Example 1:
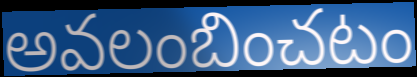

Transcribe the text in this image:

అవలంబించటం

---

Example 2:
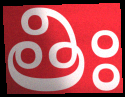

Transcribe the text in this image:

తిః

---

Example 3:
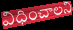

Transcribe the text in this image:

విధించాలని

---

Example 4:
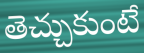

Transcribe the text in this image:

తెచ్చుకుంటే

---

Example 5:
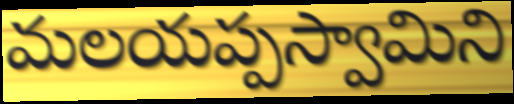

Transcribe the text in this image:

మలయప్పస్వామిని